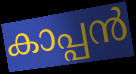
കാപ്പൻ